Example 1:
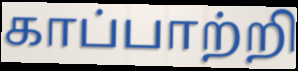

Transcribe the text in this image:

காப்பாற்றி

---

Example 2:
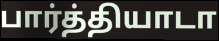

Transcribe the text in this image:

பார்த்தியாடா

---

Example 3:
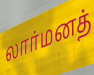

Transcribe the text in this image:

லார்மனத்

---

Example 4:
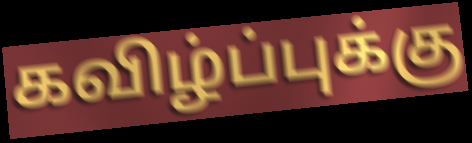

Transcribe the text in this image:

கவிழ்ப்புக்கு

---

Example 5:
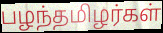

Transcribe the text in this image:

பழந்தமிழர்கள்